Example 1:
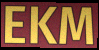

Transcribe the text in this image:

EKM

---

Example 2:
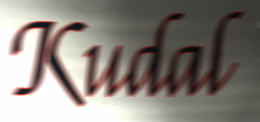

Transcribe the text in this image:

Kudal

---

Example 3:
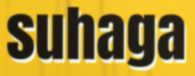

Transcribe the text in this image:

suhaga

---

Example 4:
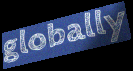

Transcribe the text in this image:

globally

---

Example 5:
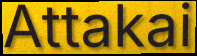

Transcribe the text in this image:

Attakai